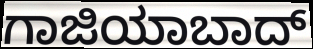
ಗಾಜಿಯಾಬಾದ್